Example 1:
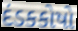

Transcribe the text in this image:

દંડકકોષો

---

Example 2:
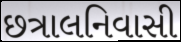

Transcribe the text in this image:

છત્રાલનિવાસી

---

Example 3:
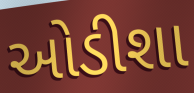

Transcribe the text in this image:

ઓડીશા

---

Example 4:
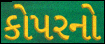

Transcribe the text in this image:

કોપરનો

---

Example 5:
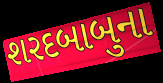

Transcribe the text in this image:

શરદબાબુના